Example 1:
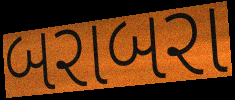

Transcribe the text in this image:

બરાબરા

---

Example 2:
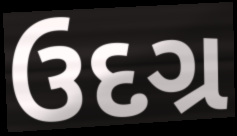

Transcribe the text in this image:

ઉદગ્ર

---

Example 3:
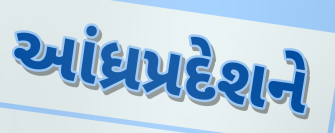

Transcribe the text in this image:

આંધ્રપ્રદેશને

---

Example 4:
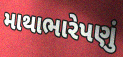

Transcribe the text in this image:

માથાભારેપણું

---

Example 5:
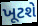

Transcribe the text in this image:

ખૂટશે